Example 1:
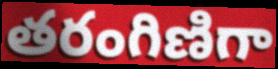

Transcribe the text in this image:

తరంగిణిగా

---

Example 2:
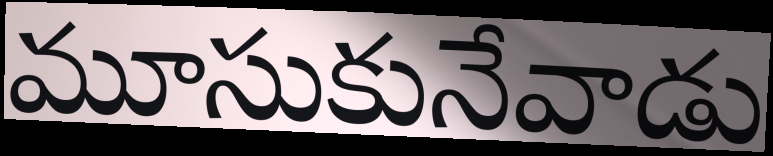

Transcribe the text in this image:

మూసుకునేవాడు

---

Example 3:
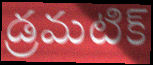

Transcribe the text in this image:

డ్రమటిక్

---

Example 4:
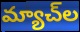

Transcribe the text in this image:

మ్యాచ్‌ల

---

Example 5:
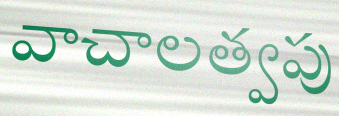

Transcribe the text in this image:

వాచాలత్వపు